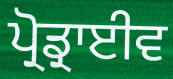
ਪ੍ਰੋਡ੍ਰਾਈਵ